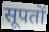
सूपतों